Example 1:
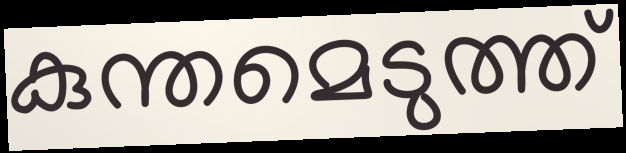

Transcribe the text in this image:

കുന്തമെടുത്ത്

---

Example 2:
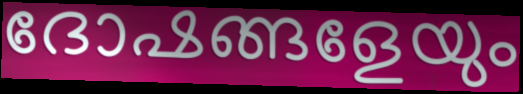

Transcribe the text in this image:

ദോഷങ്ങളേയും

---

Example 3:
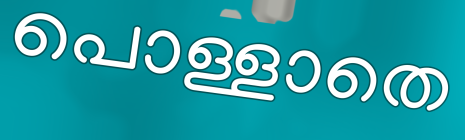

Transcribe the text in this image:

പൊള്ളാതെ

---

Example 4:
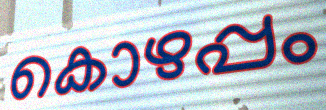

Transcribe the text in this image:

കൊഴപ്പം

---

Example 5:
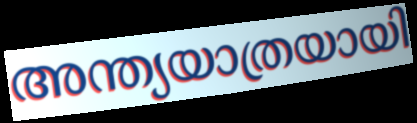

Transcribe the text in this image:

അന്ത്യയാത്രയായി